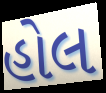
હોલ